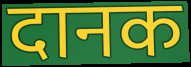
दानक